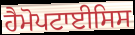
ਹੈਮੋਪਟਾਈਸਿਸ